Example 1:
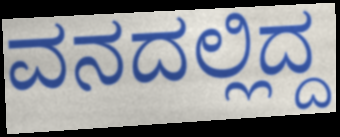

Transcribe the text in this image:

ವನದಲ್ಲಿದ್ದ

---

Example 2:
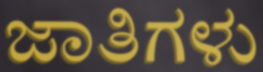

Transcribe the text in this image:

ಜಾತಿಗಳು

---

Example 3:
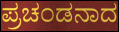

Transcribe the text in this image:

ಪ್ರಚಂಡನಾದ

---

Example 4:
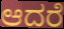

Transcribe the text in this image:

ಆದರೆ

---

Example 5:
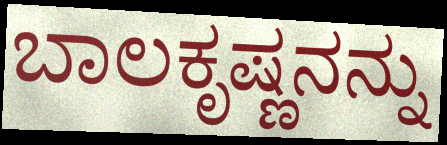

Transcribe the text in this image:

ಬಾಲಕೃಷ್ಣನನ್ನು